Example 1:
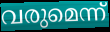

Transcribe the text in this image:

വരുമെന്ന്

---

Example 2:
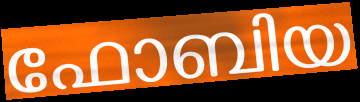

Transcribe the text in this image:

ഫോബിയ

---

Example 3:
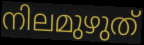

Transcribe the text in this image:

നിലമുഴുത്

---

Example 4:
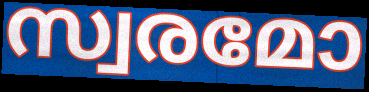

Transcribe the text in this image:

സ്വരമോ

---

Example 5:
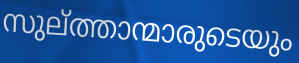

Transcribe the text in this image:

സുല്ത്താന്മാരുടെയും